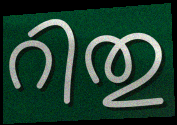
റിതു